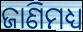
ଜାଣିମଧ୍ୟ